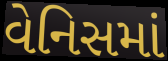
વેનિસમાં